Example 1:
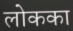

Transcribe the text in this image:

लोकका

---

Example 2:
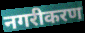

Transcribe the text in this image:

नगरीकरण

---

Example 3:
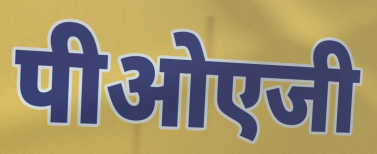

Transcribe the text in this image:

पीओएजी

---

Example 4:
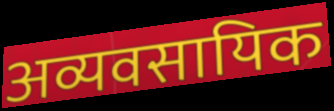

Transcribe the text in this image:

अव्यवसायिक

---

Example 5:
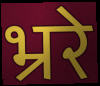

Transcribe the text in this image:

भ्ररे